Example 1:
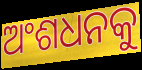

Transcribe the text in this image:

ଅଂଶଧନକୁ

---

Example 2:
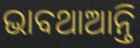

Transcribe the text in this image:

ଭାବଥାଆନ୍ତି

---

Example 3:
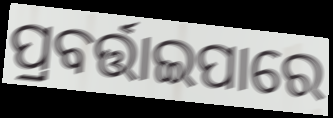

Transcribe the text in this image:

ପ୍ରବର୍ତ୍ତାଇପାରେ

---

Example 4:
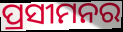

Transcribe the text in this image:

ପ୍ରସୀମନର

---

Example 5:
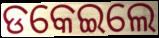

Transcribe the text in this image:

ଡକେଇଲେ